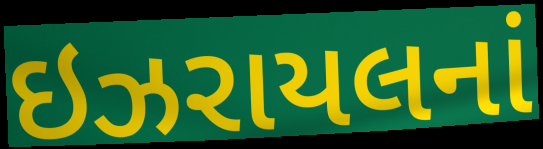
ઇઝરાયલનાં